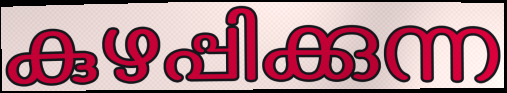
കുഴപ്പിക്കുന്ന